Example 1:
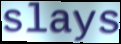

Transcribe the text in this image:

slays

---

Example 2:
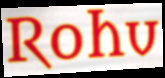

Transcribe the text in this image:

Rohu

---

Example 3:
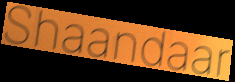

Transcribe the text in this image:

Shaandaar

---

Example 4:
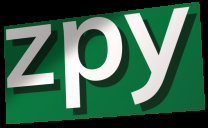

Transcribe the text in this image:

zpy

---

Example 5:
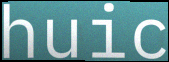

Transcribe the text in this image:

huic